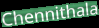
Chennithala